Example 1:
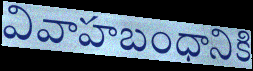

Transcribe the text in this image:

వివాహబంధానికి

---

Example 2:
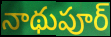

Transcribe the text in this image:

నాథుపూర్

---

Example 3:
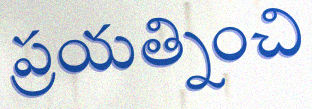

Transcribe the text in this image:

ప్రయత్నించి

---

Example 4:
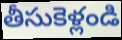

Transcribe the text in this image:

తీసుకెళ్లండి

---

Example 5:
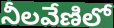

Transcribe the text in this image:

నీలవేణిలో